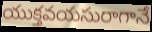
యుక్తవయసురాగానే